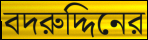
বদরুদ্দিনের